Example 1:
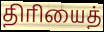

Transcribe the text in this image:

திரியைத்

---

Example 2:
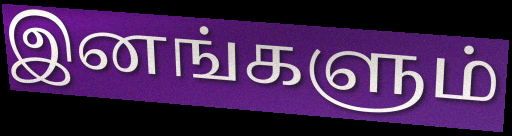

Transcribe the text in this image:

இனங்களும்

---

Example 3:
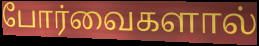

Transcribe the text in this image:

போர்வைகளால்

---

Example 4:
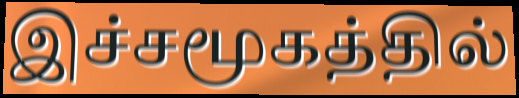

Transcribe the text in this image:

இச்சமூகத்தில்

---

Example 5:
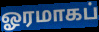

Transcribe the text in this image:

ஓரமாகப்